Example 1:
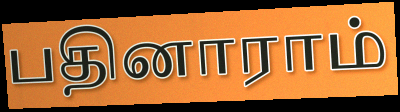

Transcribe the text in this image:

பதினாராம்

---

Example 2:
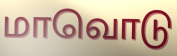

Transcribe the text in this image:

மாவொடு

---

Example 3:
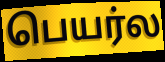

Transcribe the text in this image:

பெயர்ல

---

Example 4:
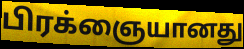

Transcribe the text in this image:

பிரக்ஞையானது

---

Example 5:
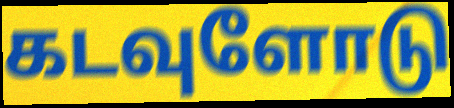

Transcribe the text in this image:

கடவுளோடு